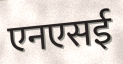
एनएसई